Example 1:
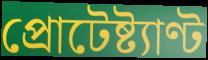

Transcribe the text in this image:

প্রোটেষ্ট্যাণ্ট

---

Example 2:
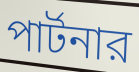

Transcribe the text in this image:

পার্টনার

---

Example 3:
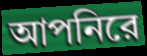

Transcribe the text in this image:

আপনিরে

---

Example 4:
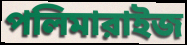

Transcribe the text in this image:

পলিমারাইজ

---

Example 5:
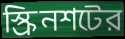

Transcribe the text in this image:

স্ক্রিনশটের